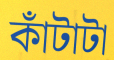
কাঁটাটা